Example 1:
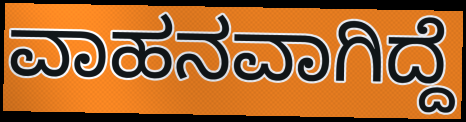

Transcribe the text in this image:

ವಾಹನವಾಗಿದ್ದೆ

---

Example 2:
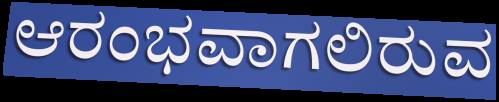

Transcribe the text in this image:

ಆರಂಭವಾಗಲಿರುವ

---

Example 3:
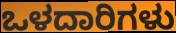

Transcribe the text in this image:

ಒಳದಾರಿಗಳು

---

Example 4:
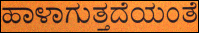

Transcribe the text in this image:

ಹಾಳಾಗುತ್ತದೆಯಂತೆ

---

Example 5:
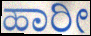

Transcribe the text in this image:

ಹಾರೀ